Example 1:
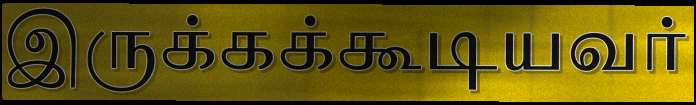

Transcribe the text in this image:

இருக்கக்கூடியவர்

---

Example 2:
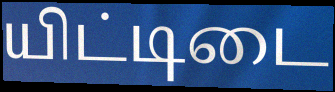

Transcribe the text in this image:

யிட்டிடை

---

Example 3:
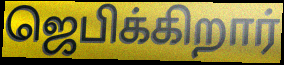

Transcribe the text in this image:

ஜெபிக்கிறார்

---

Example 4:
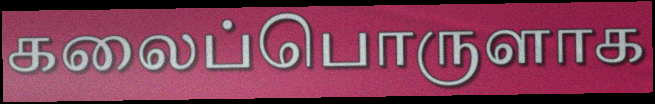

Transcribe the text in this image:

கலைப்பொருளாக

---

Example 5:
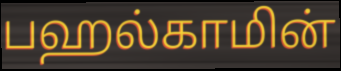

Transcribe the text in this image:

பஹல்காமின்